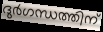
ദുർഗന്ധത്തിന്